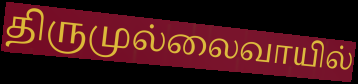
திருமுல்லைவாயில்